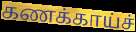
கணக்காய்ச்